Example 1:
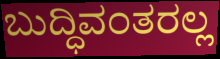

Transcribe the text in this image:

ಬುದ್ಧಿವಂತರಲ್ಲ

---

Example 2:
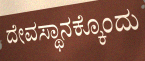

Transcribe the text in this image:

ದೇವಸ್ಥಾನಕ್ಕೊಂದು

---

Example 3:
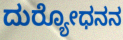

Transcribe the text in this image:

ದುರ‍್ಯೋಧನನ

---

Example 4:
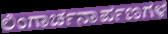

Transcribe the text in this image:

ಲಿಂಗಾರ್ಚನಾರ್ಪಣಗಳ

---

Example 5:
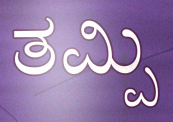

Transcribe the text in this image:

ತಮ್ಪಿ